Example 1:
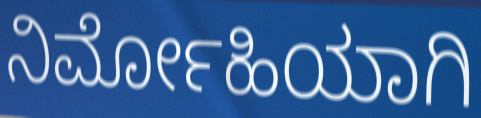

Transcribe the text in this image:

ನಿರ್ಮೋಹಿಯಾಗಿ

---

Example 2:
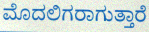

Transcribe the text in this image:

ಮೊದಲಿಗರಾಗುತ್ತಾರೆ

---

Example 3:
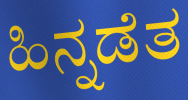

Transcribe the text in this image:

ಹಿನ್ನಡೆತ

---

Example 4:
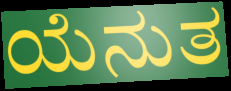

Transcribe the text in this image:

ಯೆನುತ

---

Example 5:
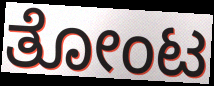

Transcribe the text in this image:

ತೋಂಟ